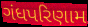
ગંધપરિણામ